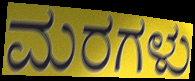
ಮರಗಳು